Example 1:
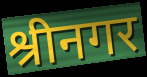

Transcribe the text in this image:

श्रीनगर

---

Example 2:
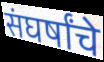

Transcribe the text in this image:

संघर्षांचे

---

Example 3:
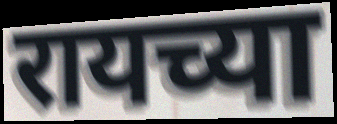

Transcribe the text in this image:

रायच्या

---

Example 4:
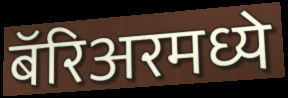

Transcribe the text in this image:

बॅरिअरमध्ये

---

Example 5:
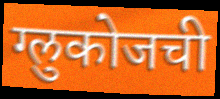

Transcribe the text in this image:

ग्लुकोजची